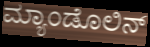
ಮ್ಯಾಂಡೊಲಿನ್